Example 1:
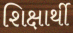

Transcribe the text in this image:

શિક્ષાર્થી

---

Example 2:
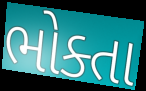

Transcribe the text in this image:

ભોક્તા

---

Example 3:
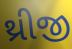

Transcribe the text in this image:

થ્રીજી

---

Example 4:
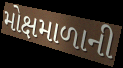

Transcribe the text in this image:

મોક્ષમાળાની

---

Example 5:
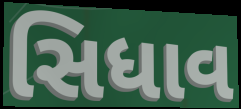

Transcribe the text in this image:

સિધાવ